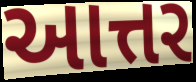
આત્તર